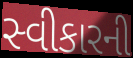
સ્વીકારની